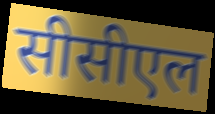
सीसीएल